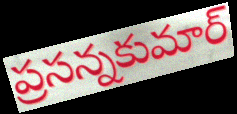
ప్రసన్నకుమార్